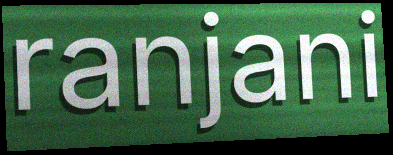
ranjani